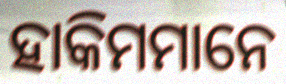
ହାକିମମାନେ